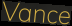
Vance